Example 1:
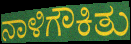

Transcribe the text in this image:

ನಾಳಿಗೌಕಿತು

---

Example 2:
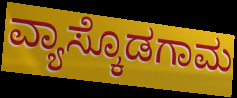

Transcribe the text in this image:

ವ್ಯಾಸ್ಕೊಡಗಾಮ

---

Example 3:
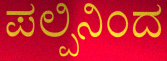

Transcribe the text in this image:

ಪಲ್ಪಿನಿಂದ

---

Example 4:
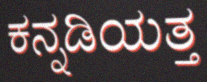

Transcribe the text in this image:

ಕನ್ನಡಿಯತ್ತ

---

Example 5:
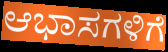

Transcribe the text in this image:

ಆಭಾಸಗಳಿಗೆ